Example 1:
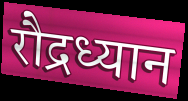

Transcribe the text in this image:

रौद्रध्यान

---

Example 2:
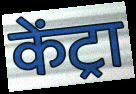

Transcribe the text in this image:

केंट्रा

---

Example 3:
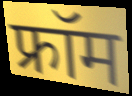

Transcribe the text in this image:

फ्रॉम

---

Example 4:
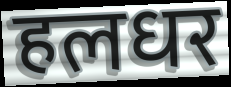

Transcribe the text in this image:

हलधर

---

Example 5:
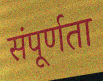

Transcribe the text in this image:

संपूर्णता